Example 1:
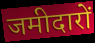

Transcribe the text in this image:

जमीदारों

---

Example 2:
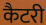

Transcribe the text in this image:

कैटरी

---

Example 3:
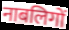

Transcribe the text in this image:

नाबलिगों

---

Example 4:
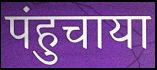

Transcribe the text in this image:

पंहुचाया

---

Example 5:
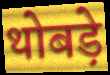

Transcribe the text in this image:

थोबड़े